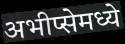
अभीप्सेमध्ये